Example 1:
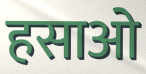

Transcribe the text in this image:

हसाओ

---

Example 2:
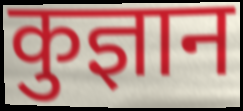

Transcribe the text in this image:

कुज्ञान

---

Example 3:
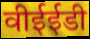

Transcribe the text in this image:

वीईईडी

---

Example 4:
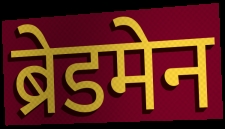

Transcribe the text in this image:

ब्रेडमेन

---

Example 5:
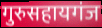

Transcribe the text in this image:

गुरुसहायगंज